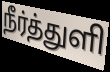
நீர்த்துளி